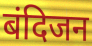
बंदिजन